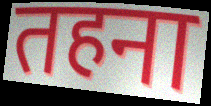
तहना